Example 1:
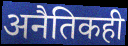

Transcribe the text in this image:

अनैतिकही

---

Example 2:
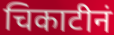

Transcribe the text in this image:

चिकाटीनं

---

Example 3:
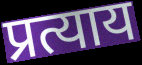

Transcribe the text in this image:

प्रत्याय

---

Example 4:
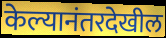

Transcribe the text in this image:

केल्यानंतरदेखील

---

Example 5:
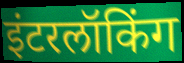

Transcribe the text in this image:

इंटरलॉकिंग